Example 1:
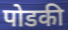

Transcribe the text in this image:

पोडकी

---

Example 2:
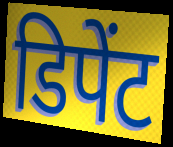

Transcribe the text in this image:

डिपेंट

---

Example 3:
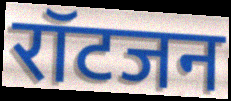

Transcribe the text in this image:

रॉटजन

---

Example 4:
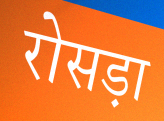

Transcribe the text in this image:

रोसड़ा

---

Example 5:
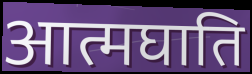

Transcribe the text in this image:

आत्मघाति